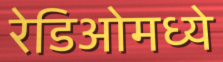
रेडिओमध्ये